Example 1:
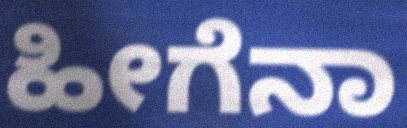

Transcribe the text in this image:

ಹೀಗೆನಾ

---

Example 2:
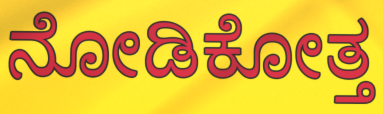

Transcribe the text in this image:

ನೋಡಿಕೋತ್ತ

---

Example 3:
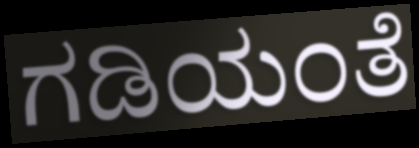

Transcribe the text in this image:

ಗಡಿಯಂತೆ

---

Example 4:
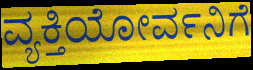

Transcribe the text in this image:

ವ್ಯಕ್ತಿಯೋರ್ವನಿಗೆ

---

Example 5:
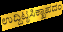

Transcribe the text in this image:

ಉದ್ದಿಟ್ಠಸಿಕ್ಖಾಪದಂ